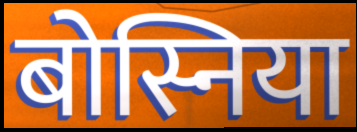
बोस्निया